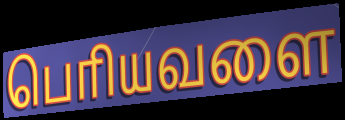
பெரியவளை